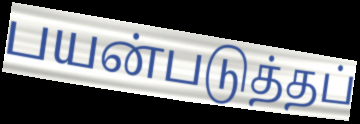
பயன்படுத்தப்